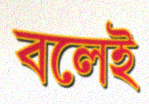
বলেই